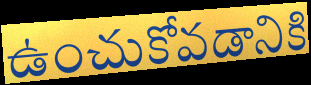
ఉంచుకోవడానికి